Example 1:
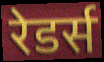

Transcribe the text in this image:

रेडर्स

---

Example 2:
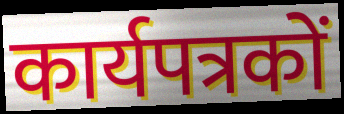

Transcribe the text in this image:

कार्यपत्रकों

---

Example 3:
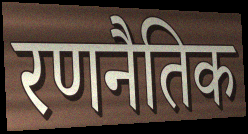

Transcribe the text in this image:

रणनैतिक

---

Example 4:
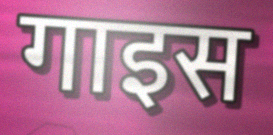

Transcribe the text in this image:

गाइस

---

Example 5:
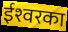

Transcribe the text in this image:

ईश्वरका